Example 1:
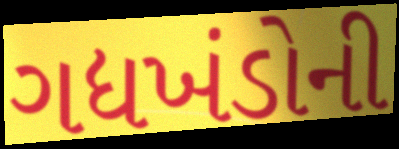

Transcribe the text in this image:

ગદ્યખંડોની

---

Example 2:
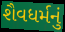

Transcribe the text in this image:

શૈવધર્મનું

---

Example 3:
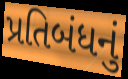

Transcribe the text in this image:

પ્રતિબંધનું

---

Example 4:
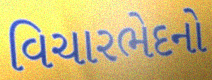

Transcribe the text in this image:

વિચારભેદનો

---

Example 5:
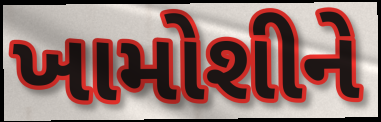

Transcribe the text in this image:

ખામોશીને